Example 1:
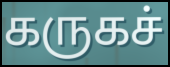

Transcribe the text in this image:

கருகச்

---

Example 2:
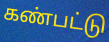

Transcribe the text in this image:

கண்பட்டு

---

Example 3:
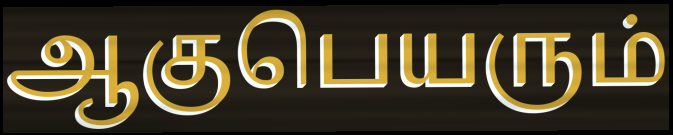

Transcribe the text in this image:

ஆகுபெயரும்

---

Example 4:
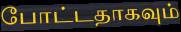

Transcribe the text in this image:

போட்டதாகவும்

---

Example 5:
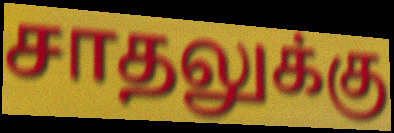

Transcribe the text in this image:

சாதலுக்கு